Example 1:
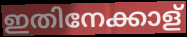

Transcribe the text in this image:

ഇതിനേക്കാള്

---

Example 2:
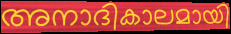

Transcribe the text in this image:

അനാദികാലമായി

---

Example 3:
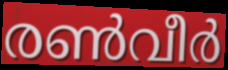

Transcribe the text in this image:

രൺവീർ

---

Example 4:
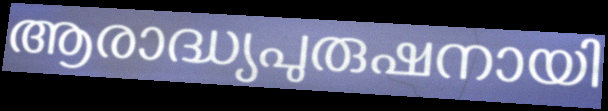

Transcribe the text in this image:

ആരാദ്ധ്യപുരുഷനായി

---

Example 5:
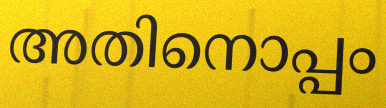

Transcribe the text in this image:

അതിനൊപ്പം